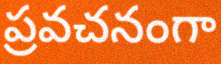
ప్రవచనంగా